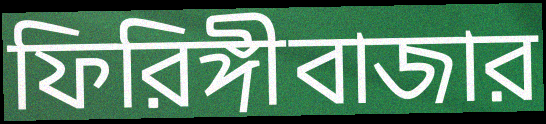
ফিরিঙ্গীবাজার